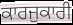
ਕਾਰਜੁਕਾਰੀ